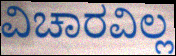
ವಿಚಾರವಿಲ್ಲ